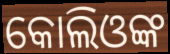
କୋଲିଓଙ୍କ